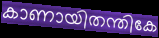
കാണായിതന്തികേ